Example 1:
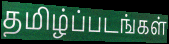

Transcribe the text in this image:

தமிழ்ப்படங்கள்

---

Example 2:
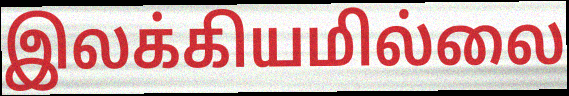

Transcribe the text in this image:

இலக்கியமில்லை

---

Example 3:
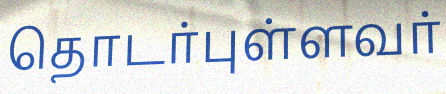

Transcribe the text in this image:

தொடர்புள்ளவர்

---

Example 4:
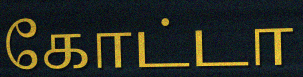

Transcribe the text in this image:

கோட்டா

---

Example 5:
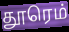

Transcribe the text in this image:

தூரெம்